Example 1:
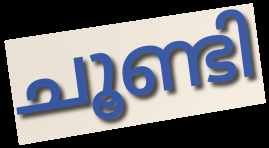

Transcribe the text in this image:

ചൂണ്ടി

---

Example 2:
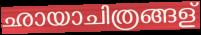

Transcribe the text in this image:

ഛായാചിത്രങ്ങള്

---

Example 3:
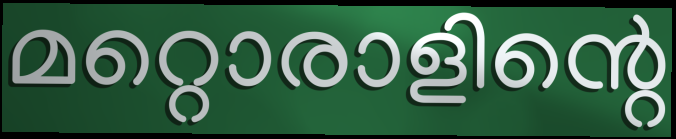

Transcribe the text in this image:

മറ്റൊരാളിന്റെ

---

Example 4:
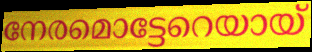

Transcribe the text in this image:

നേരമൊട്ടേറെയായ്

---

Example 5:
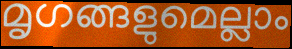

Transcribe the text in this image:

മൃഗങ്ങളുമെല്ലാം